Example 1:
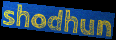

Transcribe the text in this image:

shodhun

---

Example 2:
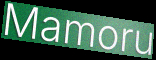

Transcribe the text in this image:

Mamoru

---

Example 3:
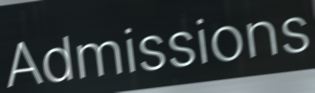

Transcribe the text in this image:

Admissions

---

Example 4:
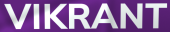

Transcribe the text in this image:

VIKRANT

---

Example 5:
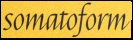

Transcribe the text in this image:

somatoform